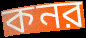
কনর